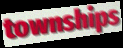
townships